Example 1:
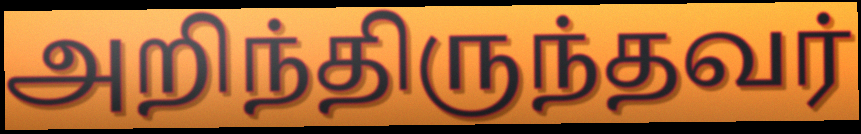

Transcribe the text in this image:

அறிந்திருந்தவர்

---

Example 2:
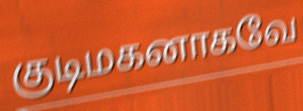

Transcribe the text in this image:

குடிமகனாகவே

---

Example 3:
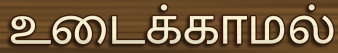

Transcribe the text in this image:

உடைக்காமல்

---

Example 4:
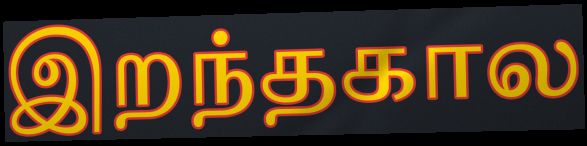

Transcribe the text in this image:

இறந்தகால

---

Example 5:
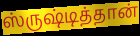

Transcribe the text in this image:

ஸ்ருஷ்டித்தான்